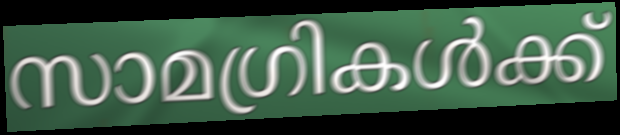
സാമഗ്രികൾക്ക്